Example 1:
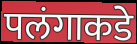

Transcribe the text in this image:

पलंगाकडे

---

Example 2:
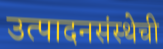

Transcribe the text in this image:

उत्पादनसंस्थेची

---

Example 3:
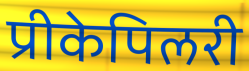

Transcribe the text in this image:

प्रीकेपिलरी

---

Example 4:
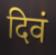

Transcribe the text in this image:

दिवं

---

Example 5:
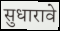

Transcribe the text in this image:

सुधारावे